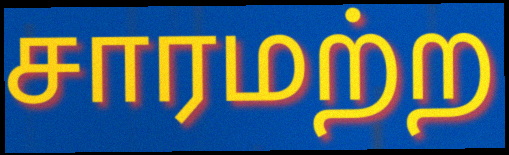
சாரமற்ற